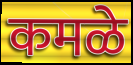
कमळे